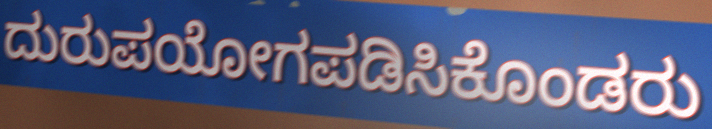
ದುರುಪಯೋಗಪಡಿಸಿಕೊಂಡರು